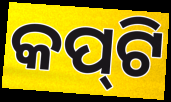
କପ୍‌ଟି